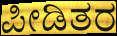
ಪೀಡಿತರ